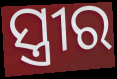
ସ୍ତ୍ରୀର